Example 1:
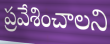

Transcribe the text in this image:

ప్రవేశించాలని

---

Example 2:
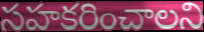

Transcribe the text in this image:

సహకరించాలని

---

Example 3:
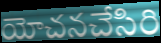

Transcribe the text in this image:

యోచనచేసిరి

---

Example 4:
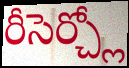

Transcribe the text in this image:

రీసెర్చ్లో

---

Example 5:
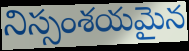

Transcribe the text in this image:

నిస్సంశయమైన